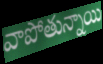
వాపోతున్నాయి